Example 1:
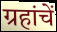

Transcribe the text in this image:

ग्रहांचें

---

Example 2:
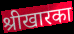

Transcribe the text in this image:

श्रीखारका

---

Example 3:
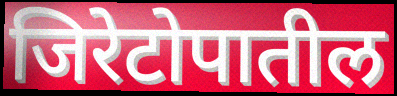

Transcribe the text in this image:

जिरेटोपातील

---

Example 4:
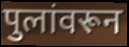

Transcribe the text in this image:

पुलांवरून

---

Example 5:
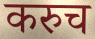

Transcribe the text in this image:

करुच